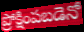
ప్రోక్షింపబడెనో